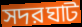
সদরঘাট